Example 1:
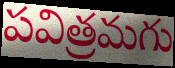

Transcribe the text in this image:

పవిత్రమగు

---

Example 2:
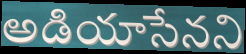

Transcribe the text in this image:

అడియాసేనని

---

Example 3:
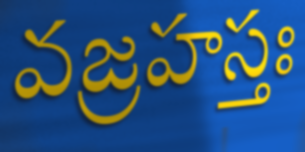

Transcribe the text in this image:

వజ్రహస్తః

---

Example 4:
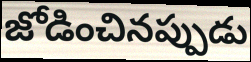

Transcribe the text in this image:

జోడించినప్పుడు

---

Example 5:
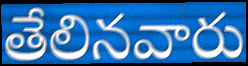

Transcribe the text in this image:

తేలినవారు